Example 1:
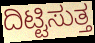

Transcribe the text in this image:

ದಿಟ್ಟಿಸುತ್ತ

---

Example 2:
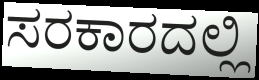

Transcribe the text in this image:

ಸರಕಾರದಲ್ಲಿ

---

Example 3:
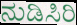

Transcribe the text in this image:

ನುಡಿಸಿರಿ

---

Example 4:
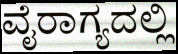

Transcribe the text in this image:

ವೈರಾಗ್ಯದಲ್ಲಿ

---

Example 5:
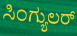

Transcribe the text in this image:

ಸಿಂಗ್ಯುಲರ್